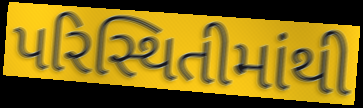
પરિસ્થિતીમાંથી